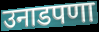
उनाडपणा